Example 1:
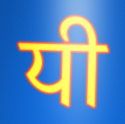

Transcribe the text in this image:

ਧੀ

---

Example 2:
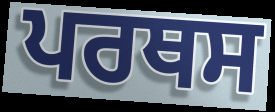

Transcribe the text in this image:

ਪਰਥਸ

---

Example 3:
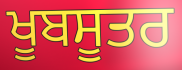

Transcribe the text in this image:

ਖੂਬਸੂਤਰ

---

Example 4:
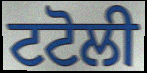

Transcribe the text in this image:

ਟਟੋਲੀ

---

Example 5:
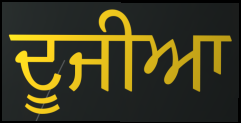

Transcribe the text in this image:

ਦੂਜੀਆ